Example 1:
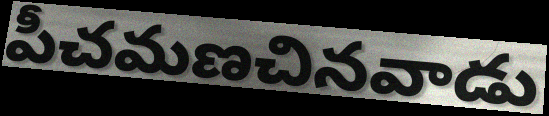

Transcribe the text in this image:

పీచమణచినవాడు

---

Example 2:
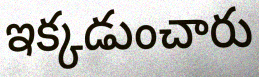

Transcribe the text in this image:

ఇక్కడుంచారు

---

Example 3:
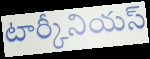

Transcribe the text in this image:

టార్కీనియస్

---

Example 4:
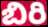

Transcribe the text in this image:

బిరి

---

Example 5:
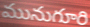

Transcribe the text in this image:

మునుగూరి